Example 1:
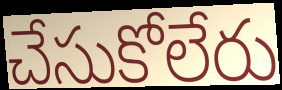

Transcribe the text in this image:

చేసుకోలేరు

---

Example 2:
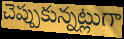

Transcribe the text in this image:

చెప్పుకున్నట్లుగా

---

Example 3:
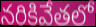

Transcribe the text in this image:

నరికివేతలో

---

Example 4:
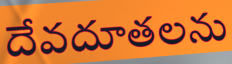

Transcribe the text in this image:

దేవదూతలను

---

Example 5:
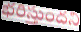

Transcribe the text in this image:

భరిస్తుందని